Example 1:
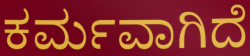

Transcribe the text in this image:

ಕರ್ಮವಾಗಿದೆ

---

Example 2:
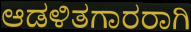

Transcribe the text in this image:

ಆಡಳಿತಗಾರರಾಗಿ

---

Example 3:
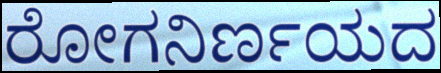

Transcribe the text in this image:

ರೋಗನಿರ್ಣಯದ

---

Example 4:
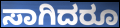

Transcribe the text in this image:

ಸಾಗಿದರೂ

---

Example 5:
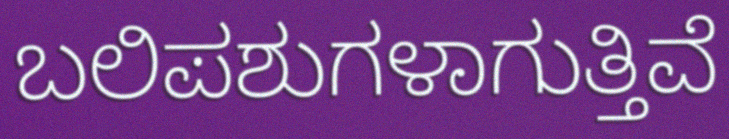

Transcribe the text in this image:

ಬಲಿಪಶುಗಳಾಗುತ್ತಿವೆ